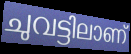
ചുവട്ടിലാണ്